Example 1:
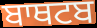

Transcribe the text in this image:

ਬਾਥਟਬ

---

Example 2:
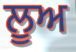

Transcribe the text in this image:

ਲੂਅ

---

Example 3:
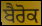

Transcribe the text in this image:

ਬੈਰੋਕ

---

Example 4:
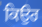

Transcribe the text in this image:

ਕਿਉਰ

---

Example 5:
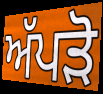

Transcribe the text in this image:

ਅੱਪੜੋ